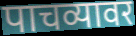
पाचव्यावर